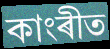
কাংৰীত